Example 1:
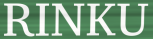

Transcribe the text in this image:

RINKU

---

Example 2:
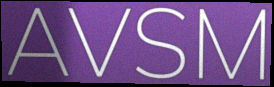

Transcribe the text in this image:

AVSM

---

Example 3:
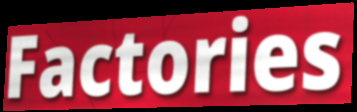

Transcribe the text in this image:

Factories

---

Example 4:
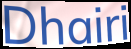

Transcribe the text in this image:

Dhairi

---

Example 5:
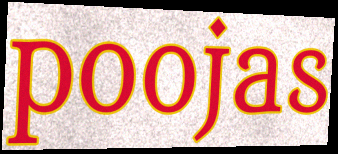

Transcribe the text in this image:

poojas